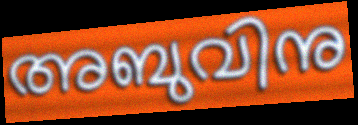
അബുവിനു